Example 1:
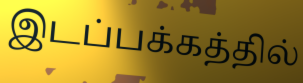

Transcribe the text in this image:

இடப்பக்கத்தில்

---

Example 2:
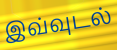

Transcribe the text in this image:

இவ்வுடல்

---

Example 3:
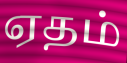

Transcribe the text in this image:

ஏதம்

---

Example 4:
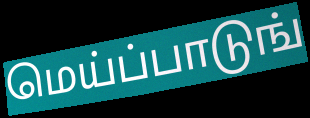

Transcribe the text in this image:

மெய்ப்பாடுங்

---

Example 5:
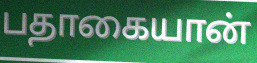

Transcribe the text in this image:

பதாகையான்